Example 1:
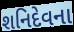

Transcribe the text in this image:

શનિદેવના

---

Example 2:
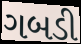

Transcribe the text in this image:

ગબડી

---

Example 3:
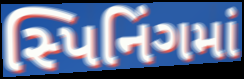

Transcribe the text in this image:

સ્પિનિંગમાં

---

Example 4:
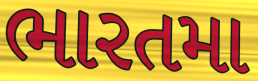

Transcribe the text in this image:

ભારતમા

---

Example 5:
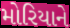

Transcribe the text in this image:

મોરિયાને